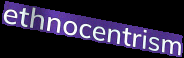
ethnocentrism